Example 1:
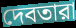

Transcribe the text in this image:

দেবতারা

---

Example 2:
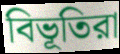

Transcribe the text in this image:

বিভূতিরা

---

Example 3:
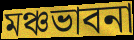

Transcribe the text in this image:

মঞ্চভাবনা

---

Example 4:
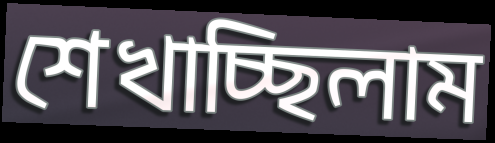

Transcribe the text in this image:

শেখাচ্ছিলাম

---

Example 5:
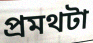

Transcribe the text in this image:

প্রমথটা